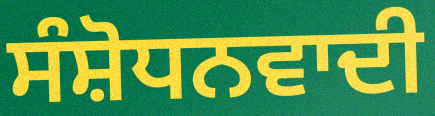
ਸੰਸ਼ੋਧਨਵਾਦੀ